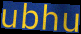
ubhu